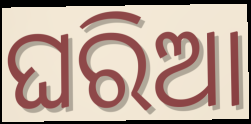
ଘରିଆ